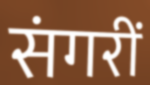
संगरीं